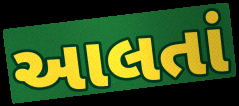
આલતાં